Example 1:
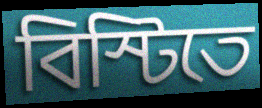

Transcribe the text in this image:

বিস্টিতে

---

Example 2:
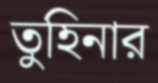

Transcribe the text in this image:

তুহিনার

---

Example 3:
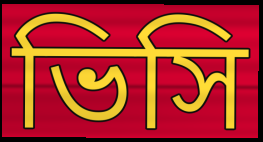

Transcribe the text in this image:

ভিসি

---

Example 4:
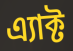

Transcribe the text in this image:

এ্যাক্ট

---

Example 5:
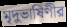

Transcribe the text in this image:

মৃদুভাষিণীর